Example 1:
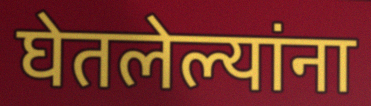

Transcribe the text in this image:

घेतलेल्यांना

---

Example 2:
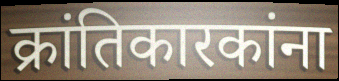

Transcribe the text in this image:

क्रांतिकारकांना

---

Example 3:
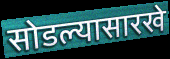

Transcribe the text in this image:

सोडल्यासारखे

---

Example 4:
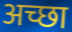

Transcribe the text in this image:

अच्छा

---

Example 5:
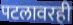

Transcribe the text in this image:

पटलावरही